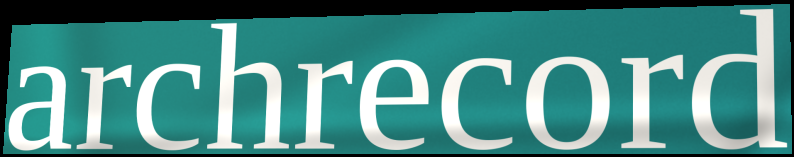
archrecord